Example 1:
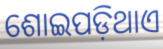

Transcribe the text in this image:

ଶୋଇପଡ଼ିଥାଏ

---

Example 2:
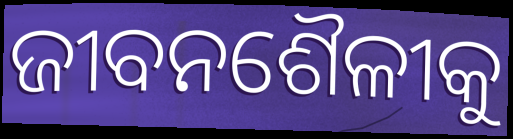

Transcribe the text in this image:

ଜୀବନଶୈଳୀକୁ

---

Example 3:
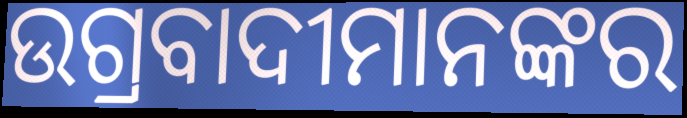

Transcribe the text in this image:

ଉଗ୍ରବାଦୀମାନଙ୍କର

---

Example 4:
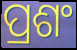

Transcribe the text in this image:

ପ୍ରଶଂ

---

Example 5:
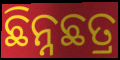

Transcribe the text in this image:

ଛିନ୍ନଛତ୍ର